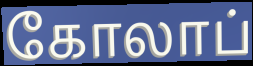
கோலாப்